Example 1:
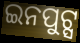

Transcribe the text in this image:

ଇନପୁଟ୍ସ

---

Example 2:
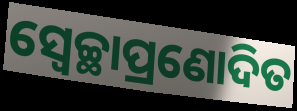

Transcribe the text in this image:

ସ୍ୱେଚ୍ଛାପ୍ରଣୋଦିତ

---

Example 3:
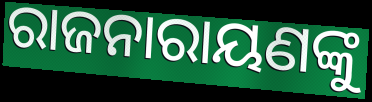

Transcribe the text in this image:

ରାଜନାରାୟଣଙ୍କୁ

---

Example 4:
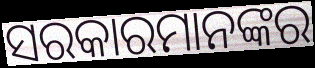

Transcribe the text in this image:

ସରକାରମାନଙ୍କର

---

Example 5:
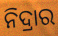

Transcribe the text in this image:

ନିଦ୍ରାର